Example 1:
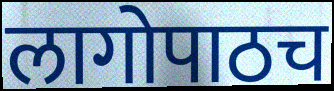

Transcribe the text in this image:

लागोपाठच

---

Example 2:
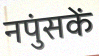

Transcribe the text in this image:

नपुंसकें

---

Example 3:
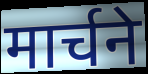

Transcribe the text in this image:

मार्चने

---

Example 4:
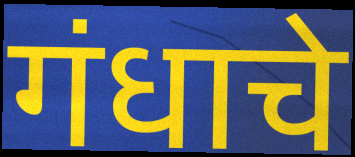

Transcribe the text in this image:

गंधाचे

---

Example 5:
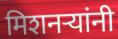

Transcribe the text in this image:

मिशनर्‍यांनी